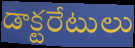
డాక్టరేటులు